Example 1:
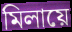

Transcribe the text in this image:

মিলায়ে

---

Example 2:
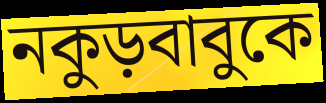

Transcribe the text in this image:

নকুড়বাবুকে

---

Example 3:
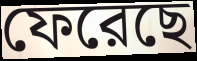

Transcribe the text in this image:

ফেরেছে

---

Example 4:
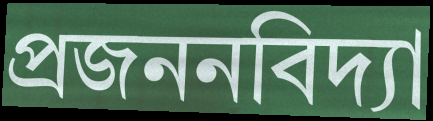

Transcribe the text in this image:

প্রজননবিদ্যা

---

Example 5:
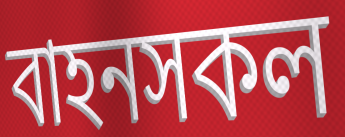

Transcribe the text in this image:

বাহনসকল